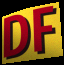
DF